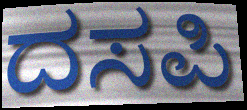
ದಸಪಿ